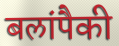
बलांपैकी